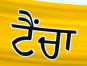
ਟੈਂਚਾ